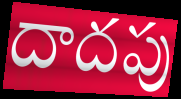
దాదపు